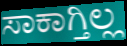
ಸಾಕಾಗ್ತಿಲ್ಲ